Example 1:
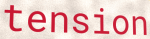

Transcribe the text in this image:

tension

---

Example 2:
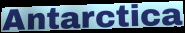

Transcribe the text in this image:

Antarctica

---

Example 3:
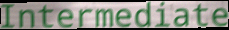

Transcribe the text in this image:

Intermediate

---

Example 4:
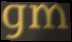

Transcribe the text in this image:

gm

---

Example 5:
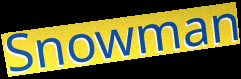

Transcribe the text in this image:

Snowman